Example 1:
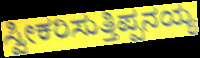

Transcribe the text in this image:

ಸ್ವೀಕರಿಸುತ್ತಿಪ್ಪನಯ್ಯ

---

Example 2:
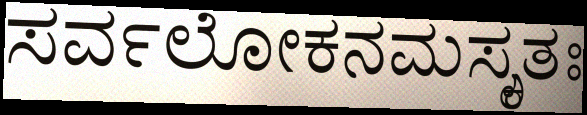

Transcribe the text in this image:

ಸರ್ವಲೋಕನಮಸ್ಕೃತಃ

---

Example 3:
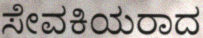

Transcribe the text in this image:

ಸೇವಕಿಯರಾದ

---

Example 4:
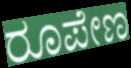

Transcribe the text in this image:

ರೂಪೇಣ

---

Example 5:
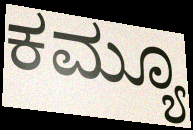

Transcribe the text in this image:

ಕಮ್ಯೂ